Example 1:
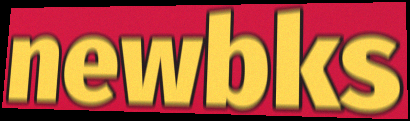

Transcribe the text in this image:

newbks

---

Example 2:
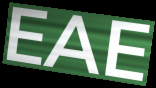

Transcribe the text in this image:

EAE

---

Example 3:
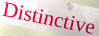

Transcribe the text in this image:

Distinctive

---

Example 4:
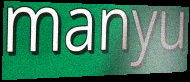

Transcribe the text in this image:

manyu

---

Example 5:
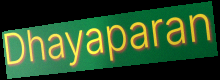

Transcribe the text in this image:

Dhayaparan